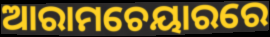
ଆରାମଚେୟାରରେ